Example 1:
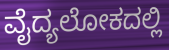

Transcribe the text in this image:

ವೈದ್ಯಲೋಕದಲ್ಲಿ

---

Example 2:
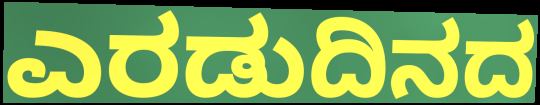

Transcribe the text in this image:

ಎರಡುದಿನದ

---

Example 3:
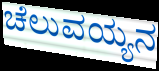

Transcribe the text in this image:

ಚೆಲುವಯ್ಯನ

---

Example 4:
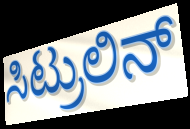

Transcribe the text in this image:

ಸಿಟ್ರುಲಿನ್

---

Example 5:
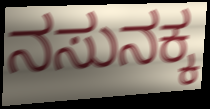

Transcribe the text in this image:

ನಸುನಕ್ಕ